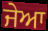
ਜੇਆ